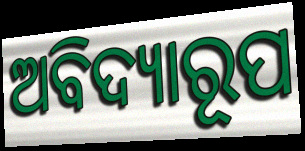
ଅବିଦ୍ୟାରୂପ